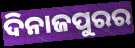
ଦିନାଜପୁରର